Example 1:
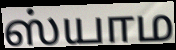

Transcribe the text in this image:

ஸ்யாம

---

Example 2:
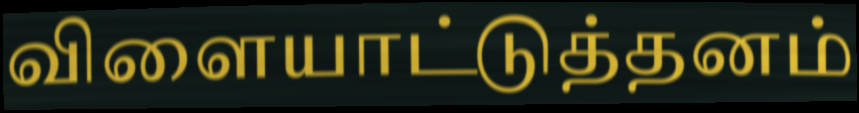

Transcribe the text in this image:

விளையாட்டுத்தனம்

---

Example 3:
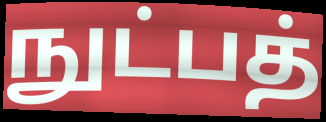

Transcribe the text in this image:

நுட்பத்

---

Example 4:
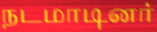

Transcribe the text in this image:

நடமாடினர்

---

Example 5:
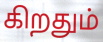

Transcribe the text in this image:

கிறதும்